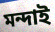
মন্দাই